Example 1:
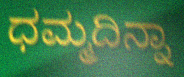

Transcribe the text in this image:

ಧಮ್ಮದಿನ್ನಾ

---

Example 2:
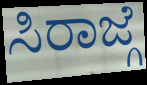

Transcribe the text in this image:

ಸಿರಾಜ್ಗೆ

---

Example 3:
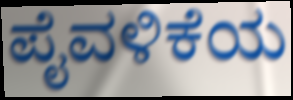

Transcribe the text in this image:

ಪೈವಳಿಕೆಯ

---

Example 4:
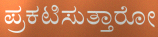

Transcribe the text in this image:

ಪ್ರಕಟಿಸುತ್ತಾರೋ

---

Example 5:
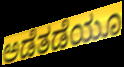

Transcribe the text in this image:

ಅಡೆತಡೆಯೂ